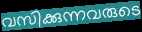
വസിക്കുന്നവരുടെ